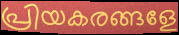
പ്രിയകരങ്ങളേ